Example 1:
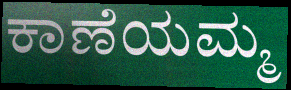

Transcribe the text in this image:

ಕಾಣೆಯಮ್ಮ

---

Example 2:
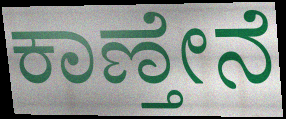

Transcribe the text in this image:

ಕಾಣ್ತೇನೆ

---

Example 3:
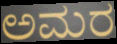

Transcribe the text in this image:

ಅಮರ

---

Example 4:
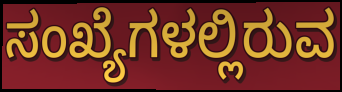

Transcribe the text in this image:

ಸಂಖ್ಯೆಗಳಲ್ಲಿರುವ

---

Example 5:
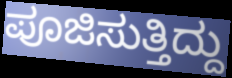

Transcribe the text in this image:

ಪೂಜಿಸುತ್ತಿದ್ದು